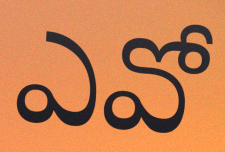
ఎవో